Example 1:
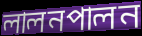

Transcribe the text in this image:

লালনপালন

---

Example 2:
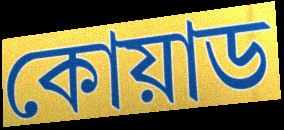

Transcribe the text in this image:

কোয়াড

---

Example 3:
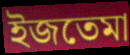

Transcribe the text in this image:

ইজতেমা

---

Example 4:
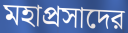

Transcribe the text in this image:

মহাপ্রসাদের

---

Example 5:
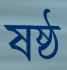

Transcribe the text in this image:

ষষ্ঠ